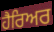
ਹੈਰਿਅਰ